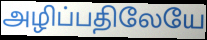
அழிப்பதிலேயே